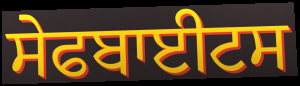
ਸੇਫਬਾਈਟਸ